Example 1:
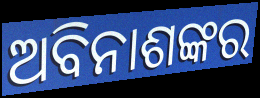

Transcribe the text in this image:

ଅବିନାଶଙ୍କର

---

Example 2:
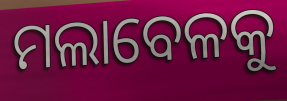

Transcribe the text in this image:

ମଲାବେଳକୁ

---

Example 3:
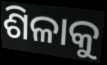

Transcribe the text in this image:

ଶିଳାକୁ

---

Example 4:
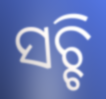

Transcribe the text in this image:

ସଚ୍ଚି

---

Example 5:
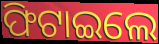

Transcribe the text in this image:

ଫିଟାଇଲେ